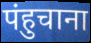
पंहुचाना